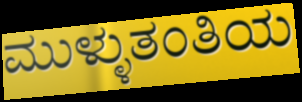
ಮುಳ್ಳುತಂತಿಯ